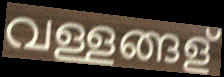
വള്ളങ്ങള്